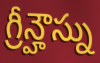
గ్రీన్హౌస్ను